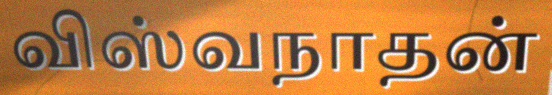
விஸ்வநாதன்